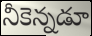
నీకెన్నడూ